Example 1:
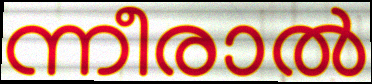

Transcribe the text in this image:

ന്നീരാൽ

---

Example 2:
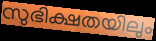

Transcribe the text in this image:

സുഭിക്ഷതയിലും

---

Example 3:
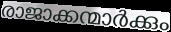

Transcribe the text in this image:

രാജാക്കന്മാർക്കും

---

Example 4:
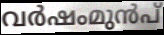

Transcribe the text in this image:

വർഷംമുൻപ്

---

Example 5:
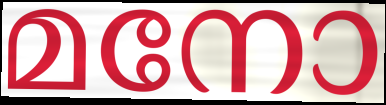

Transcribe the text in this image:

മനോ